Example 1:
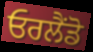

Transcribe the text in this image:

ਓਰਲੈਂਡੋ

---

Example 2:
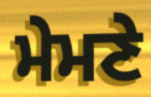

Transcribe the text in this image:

ਮੇਮਣੇ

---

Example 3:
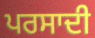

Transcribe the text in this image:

ਪਰਸਾਦੀ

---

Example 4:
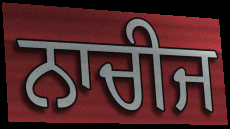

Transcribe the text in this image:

ਨਾਚੀਜ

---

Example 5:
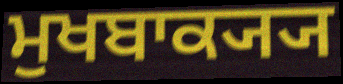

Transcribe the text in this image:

ਮੁਖਬਾਕ੍ਯ੍ਯ